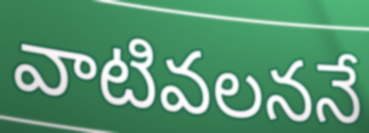
వాటివలననే